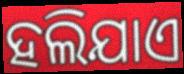
ହଲିଯାଏ